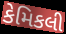
કેમિકલી